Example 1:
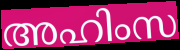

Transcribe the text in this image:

അഹിംസ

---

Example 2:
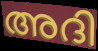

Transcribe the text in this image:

അദി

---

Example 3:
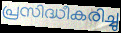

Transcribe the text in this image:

പ്രസിദ്ധീകരിച്ചു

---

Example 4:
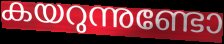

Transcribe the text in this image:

കയറുന്നുണ്ടോ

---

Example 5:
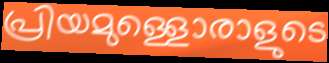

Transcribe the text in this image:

പ്രിയമുള്ളൊരാളുടെ